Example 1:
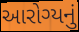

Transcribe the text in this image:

આરોગ્યનું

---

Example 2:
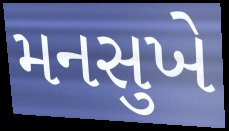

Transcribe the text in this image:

મનસુખે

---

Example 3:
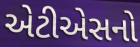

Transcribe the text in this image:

એટીએસનો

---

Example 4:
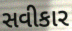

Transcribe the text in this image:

સવીકાર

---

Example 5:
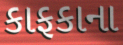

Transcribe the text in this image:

કાફકાના